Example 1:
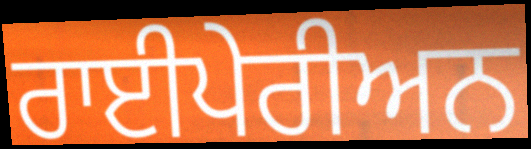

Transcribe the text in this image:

ਰਾਈਪੇਰੀਅਨ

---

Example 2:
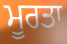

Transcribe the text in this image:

ਮੂਰਤਾ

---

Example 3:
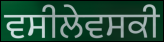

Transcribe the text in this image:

ਵਸੀਲੇਵਸਕੀ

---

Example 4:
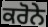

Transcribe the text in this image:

ਕਰੋਨੇ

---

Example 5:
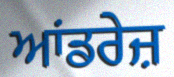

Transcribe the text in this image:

ਆਂਡਰੇਜ਼